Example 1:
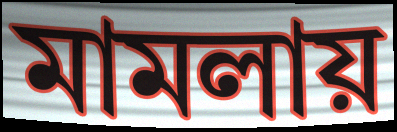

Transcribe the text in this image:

মামলায়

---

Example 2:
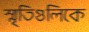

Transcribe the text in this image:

স্মৃতিগুলিকে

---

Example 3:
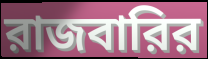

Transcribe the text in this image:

রাজবারির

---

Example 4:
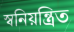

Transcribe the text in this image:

স্বনিয়ন্ত্রিত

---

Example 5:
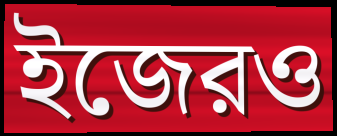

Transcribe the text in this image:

ইজেরও